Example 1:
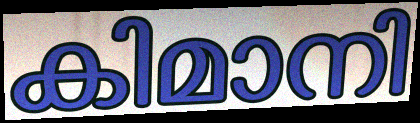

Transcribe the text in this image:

കിമാനി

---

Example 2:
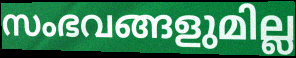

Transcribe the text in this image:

സംഭവങ്ങളുമില്ല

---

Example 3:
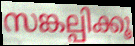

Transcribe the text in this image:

സങ്കല്പിക്കൂ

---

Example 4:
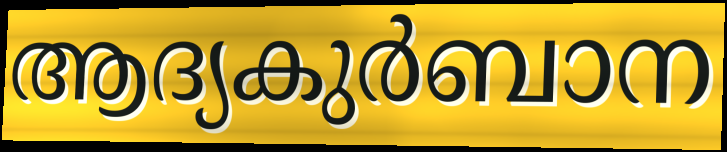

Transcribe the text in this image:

ആദ്യകുർബാന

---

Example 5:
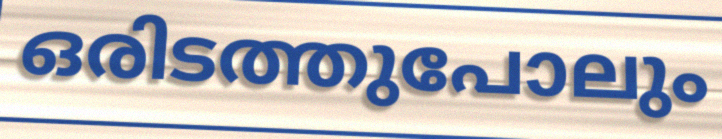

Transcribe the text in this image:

ഒരിടത്തുപോലും